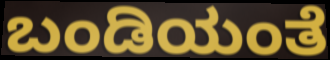
ಬಂಡಿಯಂತೆ